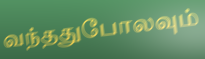
வந்ததுபோலவும்